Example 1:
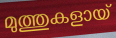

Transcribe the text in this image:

മുത്തുകളായ്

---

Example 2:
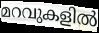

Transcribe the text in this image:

മറവുകളിൽ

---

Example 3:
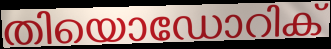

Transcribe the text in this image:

തിയൊഡോറിക്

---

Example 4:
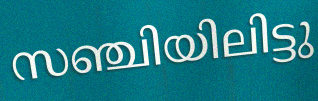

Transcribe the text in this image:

സഞ്ചിയിലിട്ടു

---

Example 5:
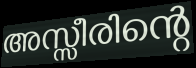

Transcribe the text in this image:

അസ്സീരിന്റെ